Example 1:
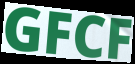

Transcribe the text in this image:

GFCF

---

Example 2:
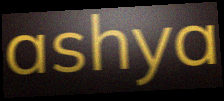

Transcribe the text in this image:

ashya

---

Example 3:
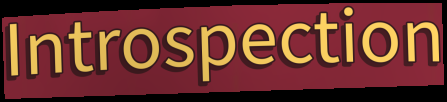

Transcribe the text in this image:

Introspection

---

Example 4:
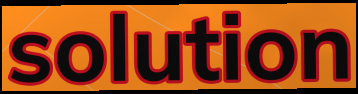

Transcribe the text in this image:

solution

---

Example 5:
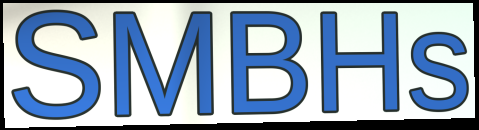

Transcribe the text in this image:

SMBHs